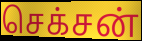
செக்சன்